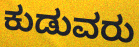
ಕುಡುವರು